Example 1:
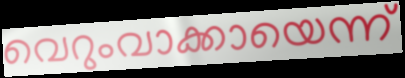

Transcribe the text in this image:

വെറുംവാക്കായെന്ന്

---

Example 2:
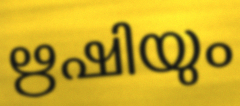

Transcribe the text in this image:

ഋഷിയും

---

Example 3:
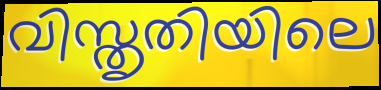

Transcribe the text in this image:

വിസ്തൃതിയിലെ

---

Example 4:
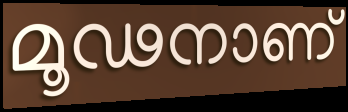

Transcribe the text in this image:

മൂഢനാണ്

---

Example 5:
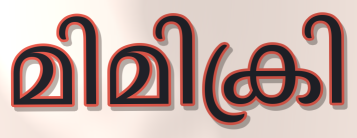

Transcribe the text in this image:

മിമിക്രി